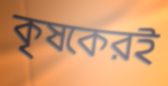
কৃষকেরই